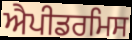
ਐਪੀਡਰਮਿਸ